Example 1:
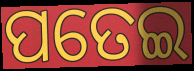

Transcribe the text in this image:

ପତେଇ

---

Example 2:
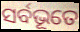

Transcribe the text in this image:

ସର୍ବଭୂତେ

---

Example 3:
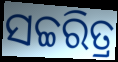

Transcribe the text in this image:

ସଚ୍ଚରିତ୍ର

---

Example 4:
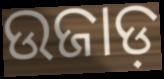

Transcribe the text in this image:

ଉଜାଡ଼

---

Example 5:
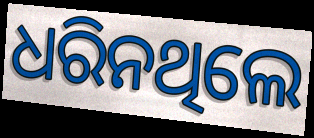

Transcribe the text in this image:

ଧରିନଥିଲେ